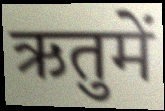
ऋतुमें